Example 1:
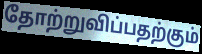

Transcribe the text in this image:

தோற்றுவிப்பதற்கும்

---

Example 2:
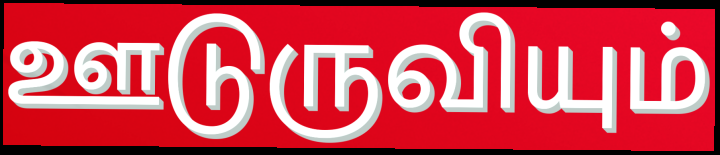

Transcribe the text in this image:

ஊடுருவியும்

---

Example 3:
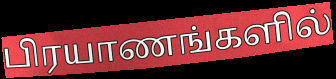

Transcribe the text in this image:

பிரயாணங்களில்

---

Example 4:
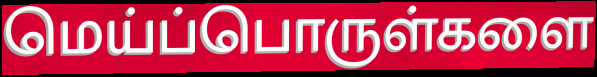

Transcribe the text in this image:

மெய்ப்பொருள்களை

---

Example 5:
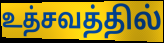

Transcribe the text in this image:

உத்சவத்தில்